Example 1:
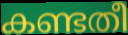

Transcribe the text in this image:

കണ്ടതീ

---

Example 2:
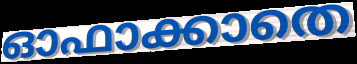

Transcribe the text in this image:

ഓഫാക്കാതെ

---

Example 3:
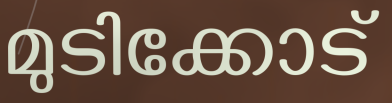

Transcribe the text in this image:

മുടിക്കോട്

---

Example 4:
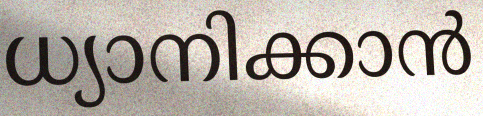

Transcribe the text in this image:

ധ്യാനിക്കാൻ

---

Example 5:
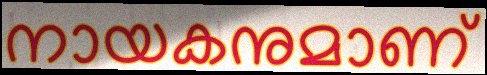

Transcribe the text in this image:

നായകനുമാണ്